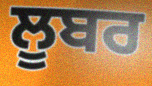
ਲੂਬਰ